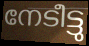
നേടീട്ടു